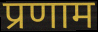
प्रणाम